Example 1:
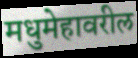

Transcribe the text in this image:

मधुमेहावरील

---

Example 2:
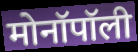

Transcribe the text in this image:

मोनॉपॉली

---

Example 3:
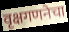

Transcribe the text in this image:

वृक्षगणनेचा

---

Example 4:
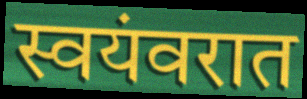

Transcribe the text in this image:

स्वयंवरात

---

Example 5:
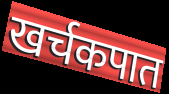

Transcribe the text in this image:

खर्चकपात